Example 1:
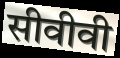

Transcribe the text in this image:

सीवीवी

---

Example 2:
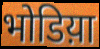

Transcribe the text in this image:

भोडिय़ा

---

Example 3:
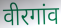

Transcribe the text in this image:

वीरगांव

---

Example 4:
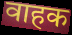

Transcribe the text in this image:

वाहक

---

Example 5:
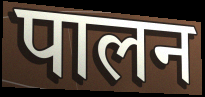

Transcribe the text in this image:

पालन